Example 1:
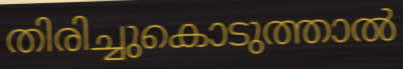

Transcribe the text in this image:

തിരിച്ചുകൊടുത്താൽ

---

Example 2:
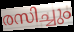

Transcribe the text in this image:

രസിച്ചും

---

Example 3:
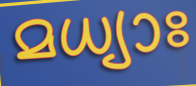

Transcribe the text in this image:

മധ്യാഃ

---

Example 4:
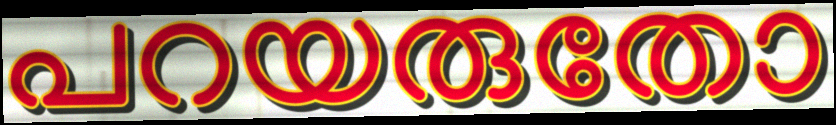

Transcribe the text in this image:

പറയരുതോ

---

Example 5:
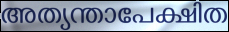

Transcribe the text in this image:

അത്യന്താപേക്ഷിത